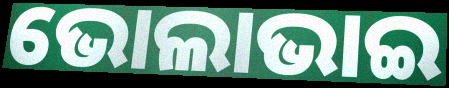
ଭୋଲାଭାଇ